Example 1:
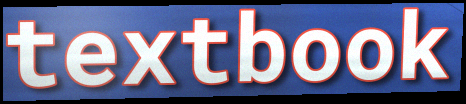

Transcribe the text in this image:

textbook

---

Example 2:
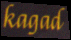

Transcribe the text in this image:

kagad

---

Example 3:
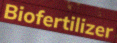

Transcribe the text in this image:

Biofertilizer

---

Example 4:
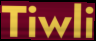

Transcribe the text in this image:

Tiwli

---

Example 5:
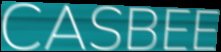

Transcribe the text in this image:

CASBEE